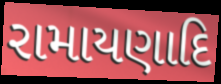
રામાયણાદિ